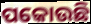
ପକୋଉଛି